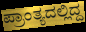
ಪ್ರಾಂತ್ಯದಲ್ಲಿದ್ದ